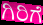
ಗಿರಿಗೆ